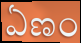
ఏణం